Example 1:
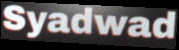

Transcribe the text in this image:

Syadwad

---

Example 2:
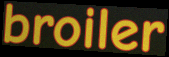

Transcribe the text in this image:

broiler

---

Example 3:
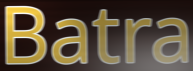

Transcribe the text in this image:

Batra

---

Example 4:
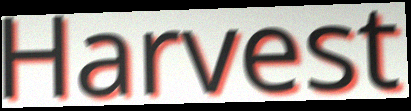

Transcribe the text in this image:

Harvest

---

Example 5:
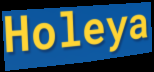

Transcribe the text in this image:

Holeya